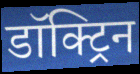
डॉक्ट्रिन